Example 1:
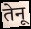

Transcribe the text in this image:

तेनू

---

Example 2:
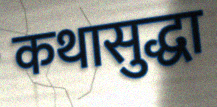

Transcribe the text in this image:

कथासुद्धा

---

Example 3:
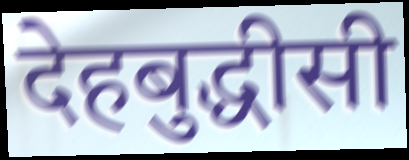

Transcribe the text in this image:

देहबुद्धीसी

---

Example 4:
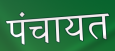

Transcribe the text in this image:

पंचायत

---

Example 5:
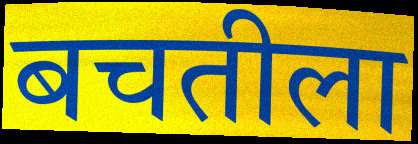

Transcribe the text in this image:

बचतीला